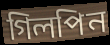
গিলপিন